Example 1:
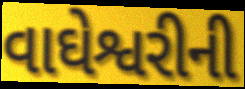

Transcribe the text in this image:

વાઘેશ્વરીની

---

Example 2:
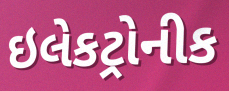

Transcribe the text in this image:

ઇલેકટ્રોનીક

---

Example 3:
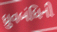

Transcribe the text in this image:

ધ્રુવબંધિની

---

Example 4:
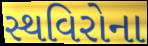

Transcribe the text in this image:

સ્થવિરોના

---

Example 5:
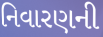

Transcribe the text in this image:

નિવારણની